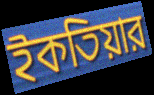
ইকতিয়ার